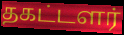
தகட்டளர்